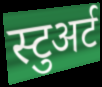
स्टुअर्ट